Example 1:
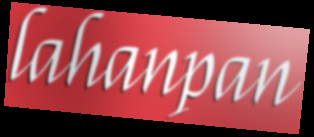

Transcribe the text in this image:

lahanpan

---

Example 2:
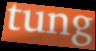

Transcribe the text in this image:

tung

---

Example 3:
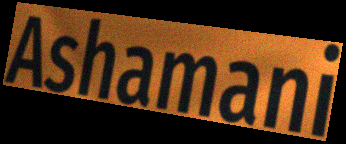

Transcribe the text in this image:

Ashamani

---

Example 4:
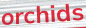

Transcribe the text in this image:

orchids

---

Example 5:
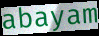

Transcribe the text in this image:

abayam